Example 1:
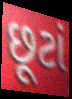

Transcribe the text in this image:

છૂટાં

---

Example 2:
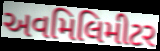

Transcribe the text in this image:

અવમિલિમીટર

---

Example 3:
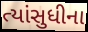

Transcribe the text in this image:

ત્યાંસુધીના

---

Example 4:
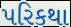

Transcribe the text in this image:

પરિકથા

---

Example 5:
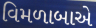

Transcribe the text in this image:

વિમળાબાએ